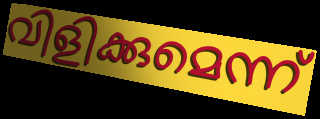
വിളിക്കുമെന്ന്